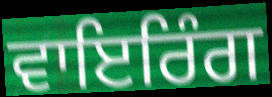
ਵਾਇਰਿੰਗ